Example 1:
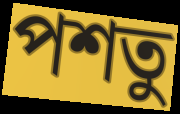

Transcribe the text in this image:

পশতু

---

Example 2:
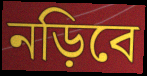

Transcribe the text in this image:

নড়িবে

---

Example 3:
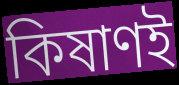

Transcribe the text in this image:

কিষাণই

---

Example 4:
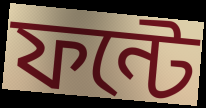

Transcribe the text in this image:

ফন্টে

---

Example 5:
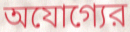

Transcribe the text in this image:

অযোগ্যের